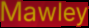
Mawley